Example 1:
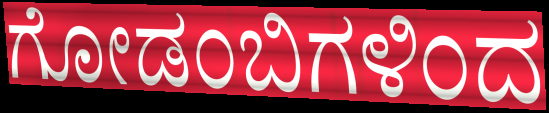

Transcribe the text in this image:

ಗೋಡಂಬಿಗಳಿಂದ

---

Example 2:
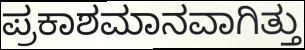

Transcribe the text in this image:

ಪ್ರಕಾಶಮಾನವಾಗಿತ್ತು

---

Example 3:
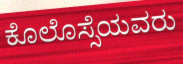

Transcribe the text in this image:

ಕೊಲೊಸ್ಸೆಯವರು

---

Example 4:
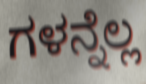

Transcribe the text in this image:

ಗಳನ್ನೆಲ್ಲ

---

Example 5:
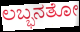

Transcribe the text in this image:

ಲಬ್ಭನತೋ